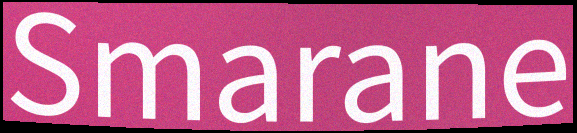
Smarane